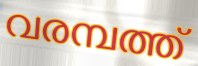
വരമ്പത്ത്